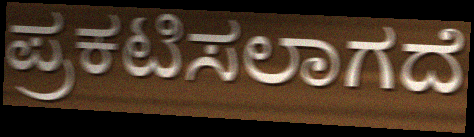
ಪ್ರಕಟಿಸಲಾಗದೆ